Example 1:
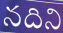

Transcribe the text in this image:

నదిని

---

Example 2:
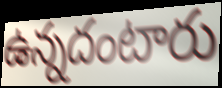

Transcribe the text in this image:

ఉన్నదంటారు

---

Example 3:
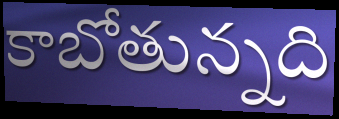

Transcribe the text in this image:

కాబోతున్నది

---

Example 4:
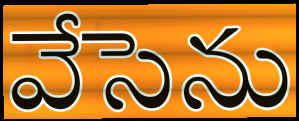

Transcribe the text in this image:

వేసెను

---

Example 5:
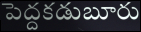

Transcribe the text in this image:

పెద్దకడుబూరు